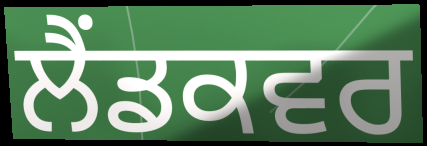
ਲੈਂਡਕਵਰ